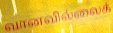
வானவில்லைக்